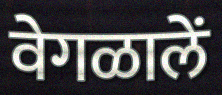
वेगळालें